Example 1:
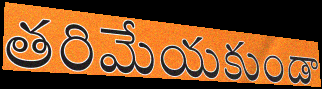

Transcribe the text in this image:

తరిమేయకుండా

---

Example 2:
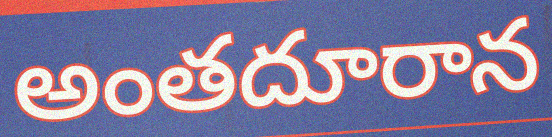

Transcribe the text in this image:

అంతదూరాన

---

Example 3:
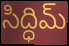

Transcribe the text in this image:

సిద్ధిమ్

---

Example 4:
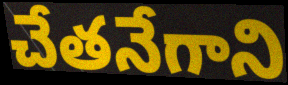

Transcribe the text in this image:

చేతనేగాని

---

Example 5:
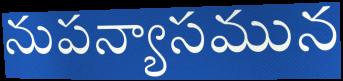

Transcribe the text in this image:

నుపన్యాసమున